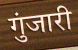
गुंजारी